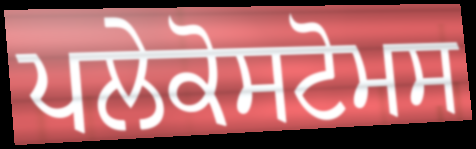
ਪਲੇਕੋਸਟੋਮਸ